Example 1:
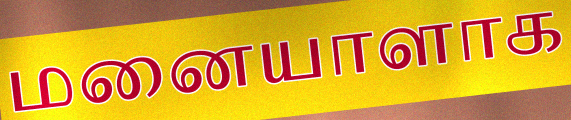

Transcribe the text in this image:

மனையாளாக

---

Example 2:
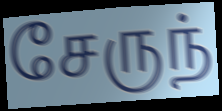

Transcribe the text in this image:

சேருந்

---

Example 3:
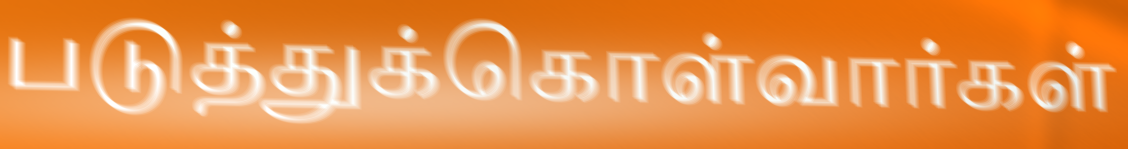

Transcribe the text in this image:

படுத்துக்கொள்வார்கள்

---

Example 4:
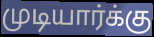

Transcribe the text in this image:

முடியார்க்கு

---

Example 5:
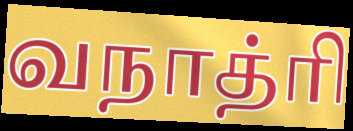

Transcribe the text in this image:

வநாத்ரி